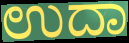
ಉದಾ